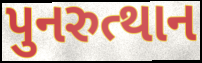
પુનરુત્થાન